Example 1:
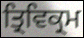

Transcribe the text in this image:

ਤ੍ਰਿਵਿਕ੍ਰਮ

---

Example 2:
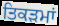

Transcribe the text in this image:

ਤਿਕੜਮਾਂ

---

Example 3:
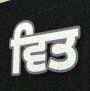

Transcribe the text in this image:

ਵਿਤ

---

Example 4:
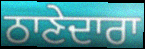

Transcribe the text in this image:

ਠਾਣੇਦਾਰਾ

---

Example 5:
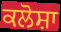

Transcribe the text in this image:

ਕਲੋਸ਼ਾ